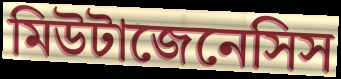
মিউটাজেনেসিস